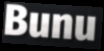
Bunu